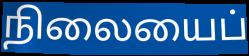
நிலையைப்